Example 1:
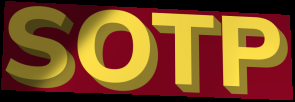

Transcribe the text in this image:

SOTP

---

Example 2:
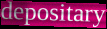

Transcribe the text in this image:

depositary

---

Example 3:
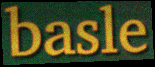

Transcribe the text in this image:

basle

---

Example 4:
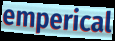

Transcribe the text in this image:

emperical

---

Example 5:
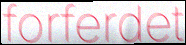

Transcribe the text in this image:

forferdet